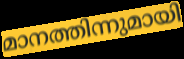
മാനത്തിന്നുമായി